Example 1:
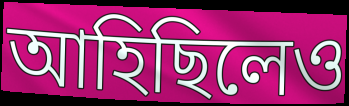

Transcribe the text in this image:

আহিছিলেও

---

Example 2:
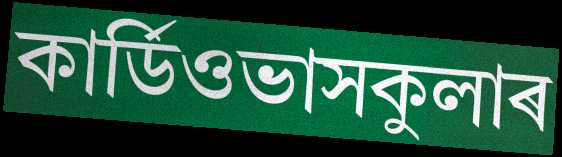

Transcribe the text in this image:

কাৰ্ডিওভাসকুলাৰ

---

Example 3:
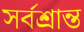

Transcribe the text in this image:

সৰ্বশ্ৰান্ত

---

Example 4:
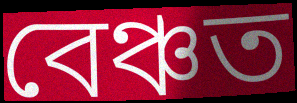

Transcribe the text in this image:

বেঞ্চত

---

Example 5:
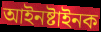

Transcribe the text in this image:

আইনষ্টাইনক